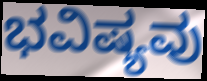
ಭವಿಷ್ಯವು